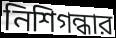
নিশিগন্ধার